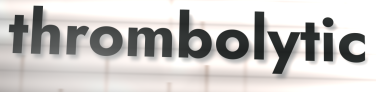
thrombolytic